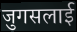
जुगसलाई